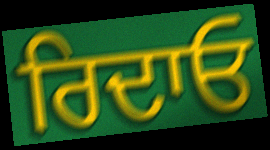
ਰਿਦਾਓ